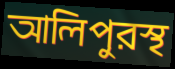
আলিপুরস্থ